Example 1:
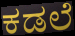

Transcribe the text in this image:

ಕಡಲೆ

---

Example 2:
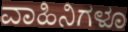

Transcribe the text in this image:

ವಾಹಿನಿಗಳೂ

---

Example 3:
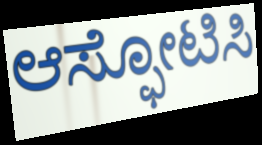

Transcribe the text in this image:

ಆಸ್ಫೋಟಿಸಿ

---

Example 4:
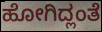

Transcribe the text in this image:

ಹೋಗಿದ್ಲಂತೆ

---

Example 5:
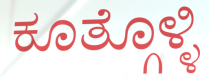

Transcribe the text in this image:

ಕೂತ್ಗೊಳ್ಳಿ